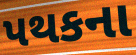
પથકના